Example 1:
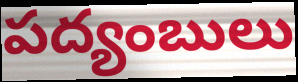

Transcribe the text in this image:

పద్యంబులు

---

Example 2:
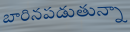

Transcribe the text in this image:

బారినపడుతున్నా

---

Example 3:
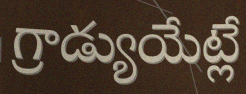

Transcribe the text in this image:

గ్రాడ్యుయేట్లే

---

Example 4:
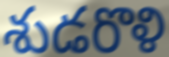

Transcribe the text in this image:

శుడరొళి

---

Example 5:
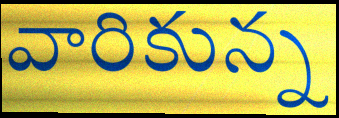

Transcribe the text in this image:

వారికున్న